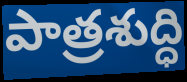
పాత్రశుద్ధి